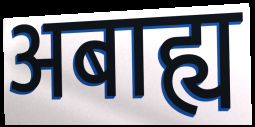
अबाह्य